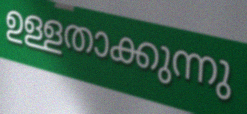
ഉള്ളതാക്കുന്നു